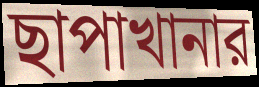
ছাপাখানার